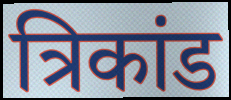
त्रिकांड